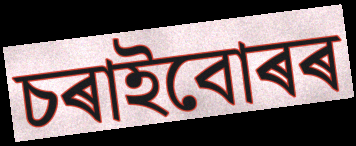
চৰাইবোৰৰ